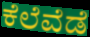
ಕೆಲೆವೆಡೆ